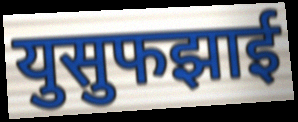
युसुफझाई